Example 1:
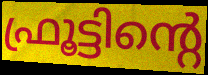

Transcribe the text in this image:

ഫ്രൂട്ടിന്റെ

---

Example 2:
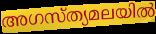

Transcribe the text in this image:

അഗസ്ത്യമലയിൽ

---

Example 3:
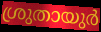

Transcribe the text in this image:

ശ്രുതായുർ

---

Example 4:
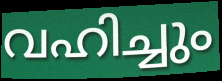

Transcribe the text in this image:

വഹിച്ചും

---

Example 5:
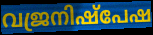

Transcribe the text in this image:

വജ്രനിഷ്പേഷ